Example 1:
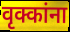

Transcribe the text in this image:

वृक्कांना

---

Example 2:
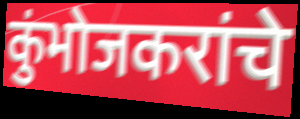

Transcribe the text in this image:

कुंभोजकरांचे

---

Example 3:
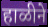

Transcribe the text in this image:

हाळीने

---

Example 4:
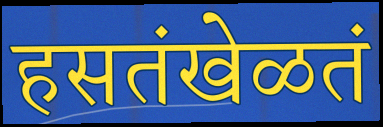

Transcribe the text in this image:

हसतंखेळतं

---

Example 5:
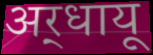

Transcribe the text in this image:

अर्धायू